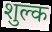
शुल्क